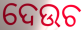
ଦେଉଚ